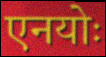
एनयोः